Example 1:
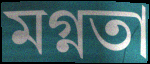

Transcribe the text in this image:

মগ্নতা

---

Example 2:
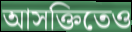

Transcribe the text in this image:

আসক্তিতেও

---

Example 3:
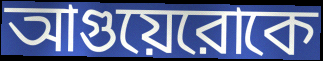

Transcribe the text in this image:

আগুয়েরোকে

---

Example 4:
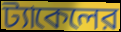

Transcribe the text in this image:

ট্যাকেলের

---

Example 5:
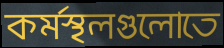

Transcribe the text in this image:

কর্মস্থলগুলোতে